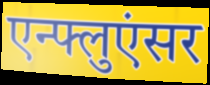
एन्फ्लुएंसर